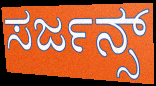
ಸರ್ಜನ್ಸ್